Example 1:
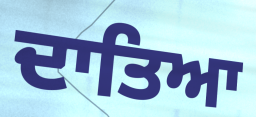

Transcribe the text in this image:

ਦਾਤਿਆ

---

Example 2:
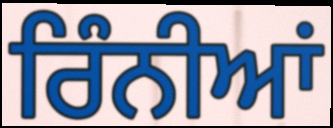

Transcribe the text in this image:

ਰਿੰਨੀਆਂ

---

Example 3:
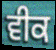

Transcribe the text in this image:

ਵੀਕ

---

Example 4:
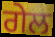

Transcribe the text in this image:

ਗੇਲ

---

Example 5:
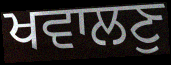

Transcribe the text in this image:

ਖਵਾਲਣੁ